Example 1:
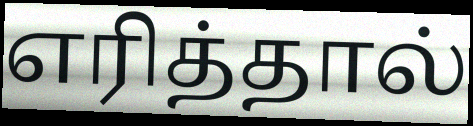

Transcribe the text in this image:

எரித்தால்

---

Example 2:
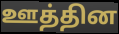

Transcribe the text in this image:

ஊத்தின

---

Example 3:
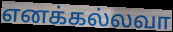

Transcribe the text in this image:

எனக்கல்லவா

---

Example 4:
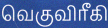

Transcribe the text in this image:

வெகுவிரீகி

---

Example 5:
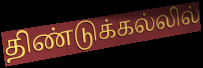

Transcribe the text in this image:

திண்டுக்கல்லில்